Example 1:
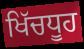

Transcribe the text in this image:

ਖਿੱਚਧੂਹ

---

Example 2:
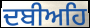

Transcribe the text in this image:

ਦਬੀਅਹਿ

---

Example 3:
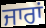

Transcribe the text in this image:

ਜਾਰਾਂ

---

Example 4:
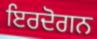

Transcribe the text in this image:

ਇਰਦੋਗਨ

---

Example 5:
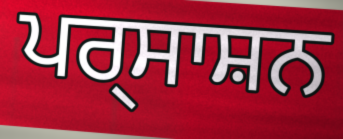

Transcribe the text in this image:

ਪਰ੍ਸਾਸ਼ਨ